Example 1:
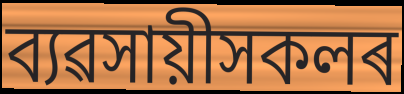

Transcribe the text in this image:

ব্যৱসায়ীসকলৰ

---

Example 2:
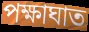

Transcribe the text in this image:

পক্ষাঘাত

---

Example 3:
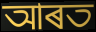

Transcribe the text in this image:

আৰত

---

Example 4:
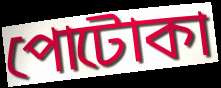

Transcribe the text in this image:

পোটোকা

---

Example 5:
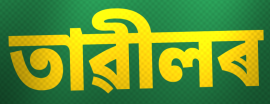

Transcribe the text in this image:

তাৱীলৰ